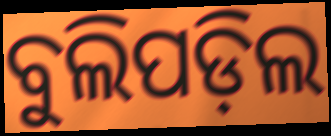
ବୁଲିପଡ଼ିଲ